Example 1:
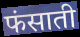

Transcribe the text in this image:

फंसाती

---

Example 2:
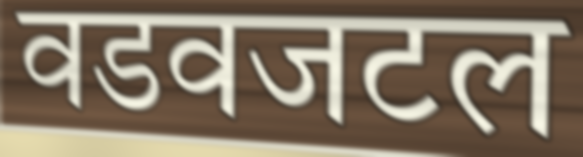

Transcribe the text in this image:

वडवजटल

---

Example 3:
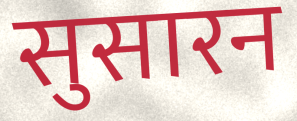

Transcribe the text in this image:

सुसारन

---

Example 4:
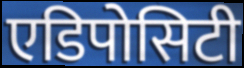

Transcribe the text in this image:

एडिपोसिटी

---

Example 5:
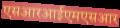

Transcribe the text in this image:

एसआरआईएमएसआर